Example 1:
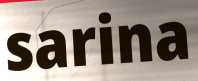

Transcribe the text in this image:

sarina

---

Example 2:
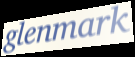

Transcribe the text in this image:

glenmark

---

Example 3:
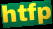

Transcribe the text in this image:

htfp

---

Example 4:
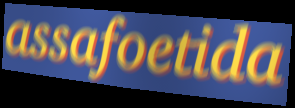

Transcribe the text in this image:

assafoetida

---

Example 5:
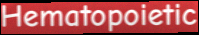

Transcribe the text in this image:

Hematopoietic